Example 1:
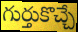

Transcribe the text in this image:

గుర్తుకొచ్చే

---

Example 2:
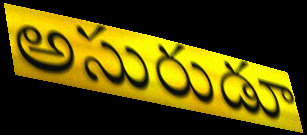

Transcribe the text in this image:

అసురుడూ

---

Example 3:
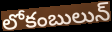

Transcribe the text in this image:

లోకంబులున్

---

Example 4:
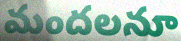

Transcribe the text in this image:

మందలనూ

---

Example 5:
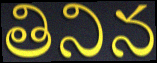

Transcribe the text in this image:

తినిన